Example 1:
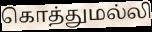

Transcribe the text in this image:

கொத்துமல்லி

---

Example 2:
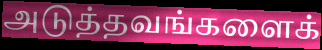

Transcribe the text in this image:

அடுத்தவங்களைக்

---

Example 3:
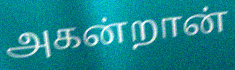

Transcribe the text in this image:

அகன்றான்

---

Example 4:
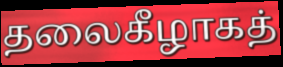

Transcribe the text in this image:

தலைகீழாகத்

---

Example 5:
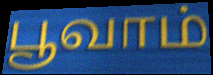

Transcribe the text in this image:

பூவாம்